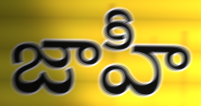
జాహీ